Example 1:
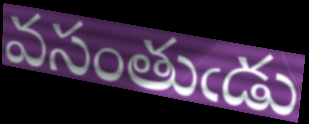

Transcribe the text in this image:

వసంతుఁడు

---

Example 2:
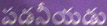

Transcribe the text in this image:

పడనీయడు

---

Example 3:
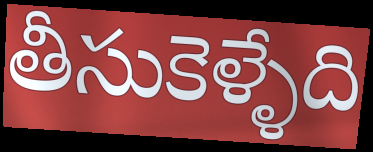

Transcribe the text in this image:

తీసుకెళ్ళేది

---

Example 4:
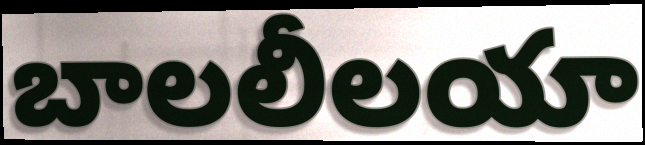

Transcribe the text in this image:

బాలలీలయా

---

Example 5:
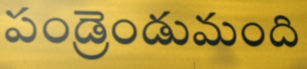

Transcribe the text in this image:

పండ్రెండుమంది